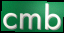
cmb